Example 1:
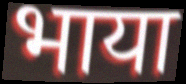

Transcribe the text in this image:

भाया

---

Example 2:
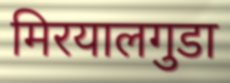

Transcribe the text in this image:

मिरयालगुडा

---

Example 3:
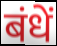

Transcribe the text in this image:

बंधें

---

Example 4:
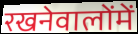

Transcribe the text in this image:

रखनेवालोंमें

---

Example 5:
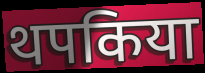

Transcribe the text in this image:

थपकिया